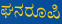
ಘನರೂಪಿ